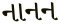
નાનન